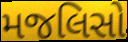
મજલિસો